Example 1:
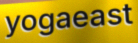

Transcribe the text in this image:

yogaeast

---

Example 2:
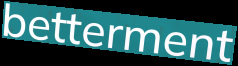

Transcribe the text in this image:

betterment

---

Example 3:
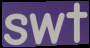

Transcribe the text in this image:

swt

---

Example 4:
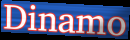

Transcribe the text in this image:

Dinamo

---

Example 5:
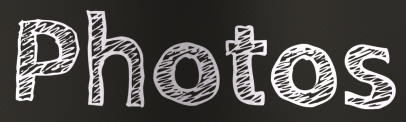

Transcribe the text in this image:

Photos